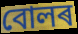
বোলৰ